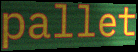
pallet